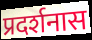
प्रदर्शनास